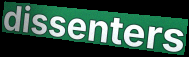
dissenters